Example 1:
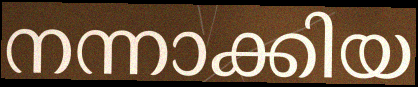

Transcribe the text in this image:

നന്നാക്കിയ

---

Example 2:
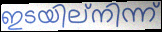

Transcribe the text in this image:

ഇടയില്നിന്ന്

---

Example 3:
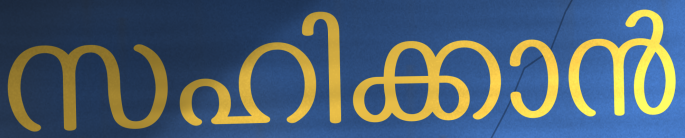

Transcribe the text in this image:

സഹിക്കാൻ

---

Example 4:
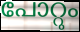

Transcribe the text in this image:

പോറ്റും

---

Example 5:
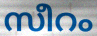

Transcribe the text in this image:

സീറം